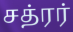
சத்ரர்